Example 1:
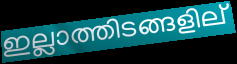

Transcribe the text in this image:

ഇല്ലാത്തിടങ്ങളില്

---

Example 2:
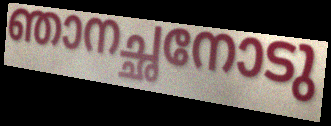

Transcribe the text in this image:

ഞാനച്ഛനോടു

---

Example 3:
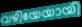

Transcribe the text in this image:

വഴിയേയായി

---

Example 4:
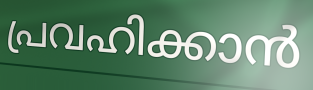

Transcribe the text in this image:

പ്രവഹിക്കാൻ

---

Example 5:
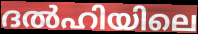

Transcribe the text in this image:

ദൽഹിയിലെ